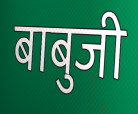
बाबुजी